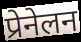
प्रेनेलन